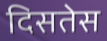
दिसतेस